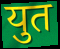
युत